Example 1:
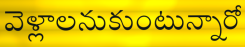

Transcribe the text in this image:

వెళ్లాలనుకుంటున్నారో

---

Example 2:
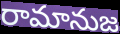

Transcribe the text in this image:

రామానుజ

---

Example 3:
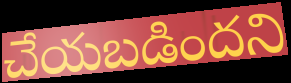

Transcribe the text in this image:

చేయబడిందని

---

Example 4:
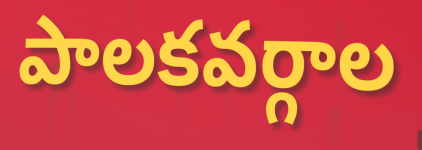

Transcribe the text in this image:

పాలకవర్గాల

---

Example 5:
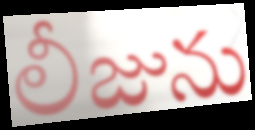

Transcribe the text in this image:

లీజును